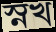
স্নখ